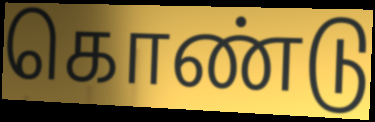
கொண்டு